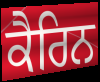
ਕੈਰਿਨ